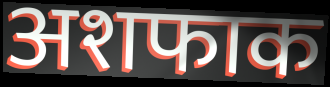
अशफाक